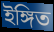
ইঙ্গিত